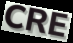
CRE